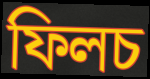
ফিলচ